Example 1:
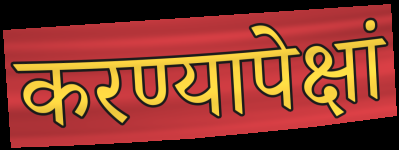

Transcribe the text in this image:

करण्यापेक्षां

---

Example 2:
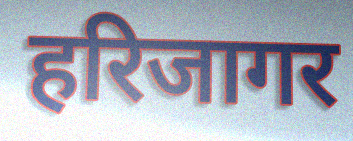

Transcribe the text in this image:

हरिजागर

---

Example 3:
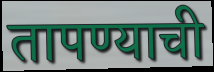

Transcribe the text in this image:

तापण्याची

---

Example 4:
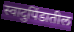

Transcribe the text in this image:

स्वादुपिंडातील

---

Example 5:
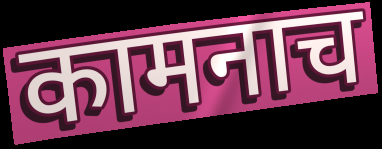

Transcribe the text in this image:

कामनाच